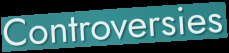
Controversies